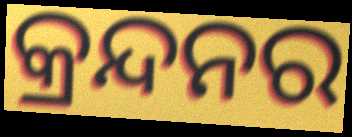
କ୍ରନ୍ଦନର